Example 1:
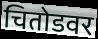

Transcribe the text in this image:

चितोडवर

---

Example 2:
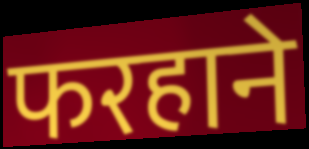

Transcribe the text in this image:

फरहाने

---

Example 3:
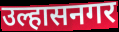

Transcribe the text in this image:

उल्हासनगर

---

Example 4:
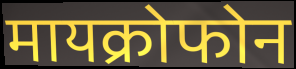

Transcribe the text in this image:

मायक्रोफोन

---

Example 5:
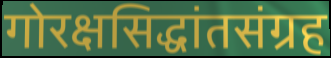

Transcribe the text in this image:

गोरक्षसिद्धांतसंग्रह